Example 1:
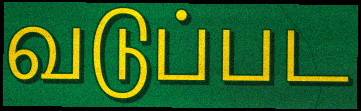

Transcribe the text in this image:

வடுப்பட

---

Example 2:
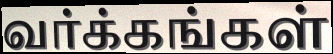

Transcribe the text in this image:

வர்க்கங்கள்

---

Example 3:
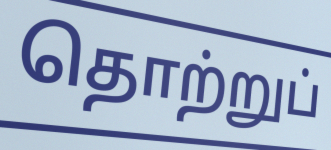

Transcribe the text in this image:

தொற்றுப்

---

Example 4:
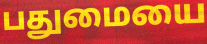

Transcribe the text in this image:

பதுமையை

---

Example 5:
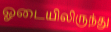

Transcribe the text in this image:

ஓடையிலிருந்து